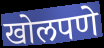
खोलपणे